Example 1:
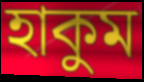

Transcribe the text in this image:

হাকুম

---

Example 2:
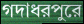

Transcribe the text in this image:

গদাধরপুরে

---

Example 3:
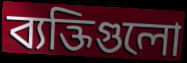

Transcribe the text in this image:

ব্যক্তিগুলো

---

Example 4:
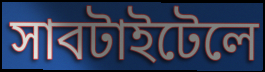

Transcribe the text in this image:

সাবটাইটেলে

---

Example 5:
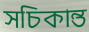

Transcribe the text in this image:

সচিকান্ত